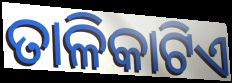
ତାଳିକାଟିଏ